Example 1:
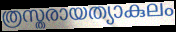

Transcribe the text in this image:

ത്രസ്തരായത്യാകുലം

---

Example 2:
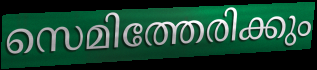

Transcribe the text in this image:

സെമിത്തേരിക്കും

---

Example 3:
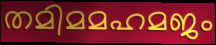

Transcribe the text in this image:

തമിമമഹമജം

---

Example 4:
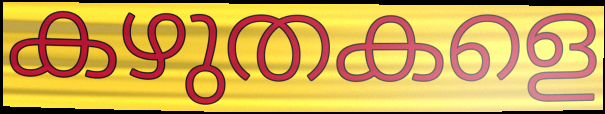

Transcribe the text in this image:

കഴുതകളെ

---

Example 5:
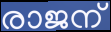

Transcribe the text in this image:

രാജന്